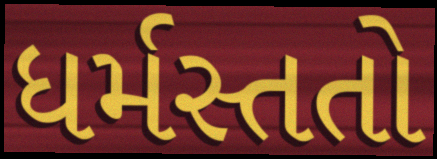
ધર્મસ્તતો